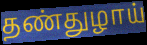
தண்துழாய்